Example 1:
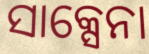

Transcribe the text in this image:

ସାକ୍ସେନା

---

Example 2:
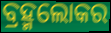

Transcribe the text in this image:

ବ୍ରହ୍ମଲୋକର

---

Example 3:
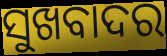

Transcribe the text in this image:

ସୁଖବାଦର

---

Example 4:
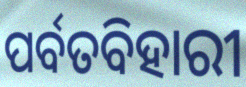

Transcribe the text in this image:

ପର୍ବତବିହାରୀ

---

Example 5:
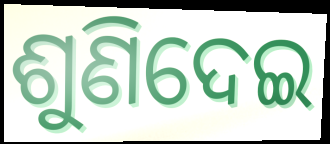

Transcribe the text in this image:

ଶୁଣିଦେଇ